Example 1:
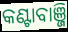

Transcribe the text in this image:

କଣ୍ଟାବାଞ୍ଜି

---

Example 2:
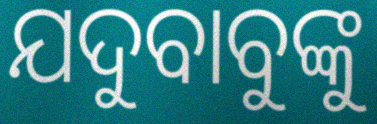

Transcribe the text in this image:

ଯଦୁବାବୁଙ୍କୁ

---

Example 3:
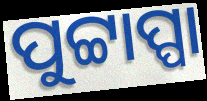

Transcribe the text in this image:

ପୁଟ୍ଟାପ୍ପା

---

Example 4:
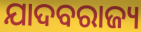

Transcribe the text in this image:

ଯାଦବରାଜ୍ୟ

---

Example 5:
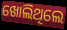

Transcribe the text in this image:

ଖୋଲିଥିଲେ